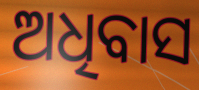
ଅଧିବାସ